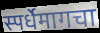
स्पर्धेमागचा